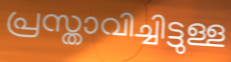
പ്രസ്താവിച്ചിട്ടുള്ള